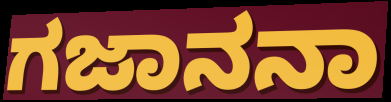
ಗಜಾನನಾ